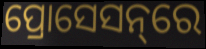
ପ୍ରୋସେସନ୍‌ରେ